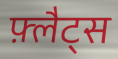
फ़्लैट्स